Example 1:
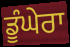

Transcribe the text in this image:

ਡੂੰਘੇਰਾ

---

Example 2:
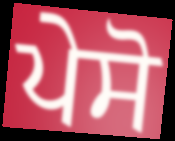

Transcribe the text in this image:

ਪੇਸੋ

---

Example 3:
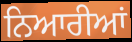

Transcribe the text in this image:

ਨਿਆਰੀਆਂ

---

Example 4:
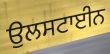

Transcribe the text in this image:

ਉਲਸਟਾਈਨ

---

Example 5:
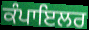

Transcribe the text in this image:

ਕੰਪਾਇਲਰ